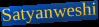
Satyanweshi